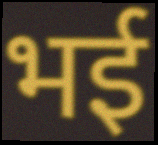
भई